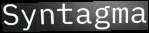
Syntagma